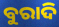
ବୁରାଦି